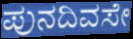
ಪುನದಿವಸೇ